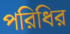
পরিধির